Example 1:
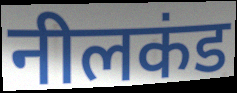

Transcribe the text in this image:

नीलकंड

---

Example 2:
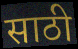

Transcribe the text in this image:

साठी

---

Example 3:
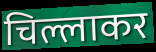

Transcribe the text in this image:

चिल्‍लाकर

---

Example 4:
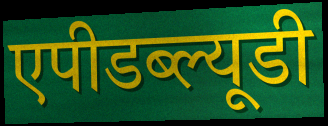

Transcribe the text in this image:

एपीडब्ल्यूडी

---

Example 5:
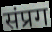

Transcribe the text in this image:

संप्रग